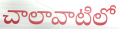
చాలావాటిలో